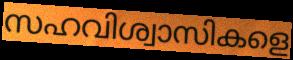
സഹവിശ്വാസികളെ